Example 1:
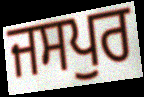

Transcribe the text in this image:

ਜਸਪੁਰ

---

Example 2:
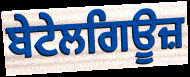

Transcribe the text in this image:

ਬੇਟੇਲਗਿਊਜ਼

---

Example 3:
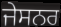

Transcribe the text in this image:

ਜੇਸਨਰ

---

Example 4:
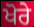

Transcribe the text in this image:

ਖੋਰੇ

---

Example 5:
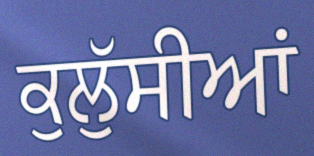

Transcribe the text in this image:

ਕੁਲੁੱਸੀਆਂ